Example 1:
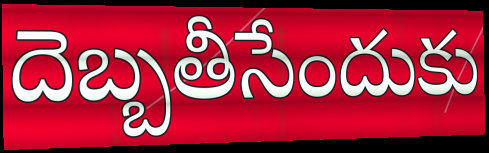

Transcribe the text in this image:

దెబ్బతీసేందుకు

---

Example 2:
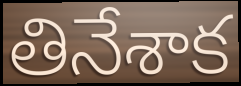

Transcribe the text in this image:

తినేశాక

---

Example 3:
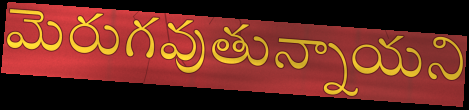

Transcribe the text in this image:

మెరుగవుతున్నాయని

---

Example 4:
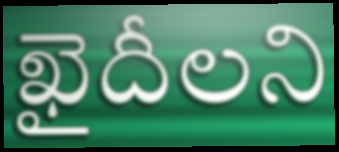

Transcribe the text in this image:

ఖైదీలని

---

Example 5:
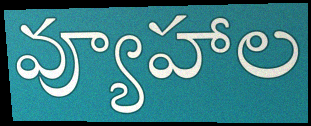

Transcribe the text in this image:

వ్యూహాల